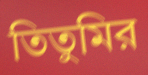
তিতুমির